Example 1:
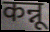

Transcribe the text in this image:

कन्नू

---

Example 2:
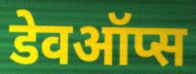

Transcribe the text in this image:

डेवऑप्स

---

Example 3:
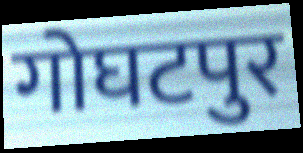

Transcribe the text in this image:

गोघटपुर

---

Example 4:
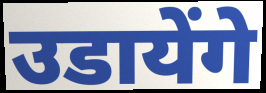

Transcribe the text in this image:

उडायेंगे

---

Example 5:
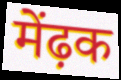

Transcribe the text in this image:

मेंढ़क